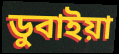
ডুবাইয়া